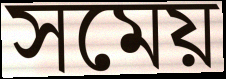
সমেয়